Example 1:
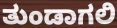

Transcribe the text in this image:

ತುಂಡಾಗಲಿ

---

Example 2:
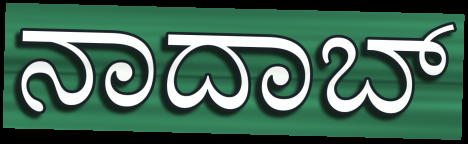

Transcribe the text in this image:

ನಾದಾಬ್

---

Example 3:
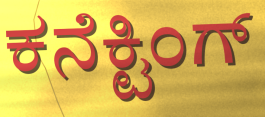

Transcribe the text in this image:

ಕನೆಕ್ಟಿಂಗ್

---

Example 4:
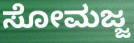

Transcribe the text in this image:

ಸೋಮಜ್ಜ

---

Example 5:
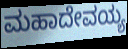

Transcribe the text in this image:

ಮಹಾದೇವಯ್ಯ